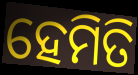
ହେମିତି